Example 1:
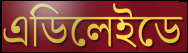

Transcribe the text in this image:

এডিলেইডে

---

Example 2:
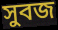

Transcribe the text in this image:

সুবজ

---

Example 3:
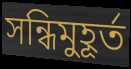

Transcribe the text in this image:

সন্ধিমুহূর্ত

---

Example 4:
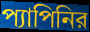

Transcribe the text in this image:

প্যাপিনির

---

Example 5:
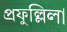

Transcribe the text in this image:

প্রফুল্লিলা